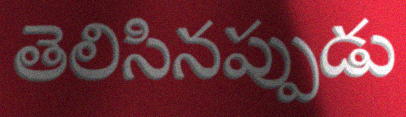
తెలిసినప్పుడు